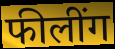
फीलींग